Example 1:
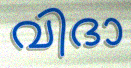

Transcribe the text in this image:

വിദാ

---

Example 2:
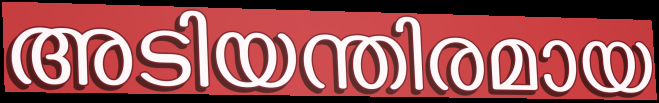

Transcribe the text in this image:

അടിയന്തിരമായ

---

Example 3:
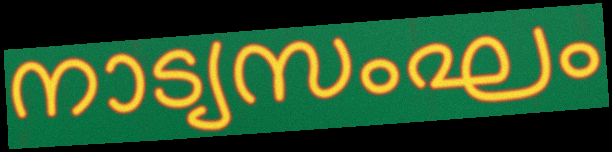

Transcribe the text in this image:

നാട്യസംഘം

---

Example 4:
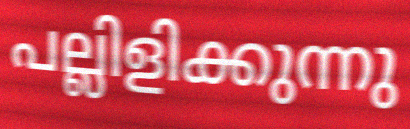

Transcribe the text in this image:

പല്ലിളിക്കുന്നു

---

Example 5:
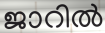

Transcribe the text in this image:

ജാറിൽ